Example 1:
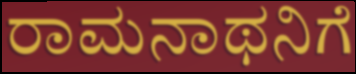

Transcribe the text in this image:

ರಾಮನಾಥನಿಗೆ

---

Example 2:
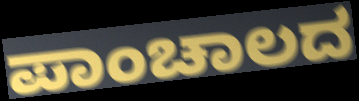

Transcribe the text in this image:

ಪಾಂಚಾಲದ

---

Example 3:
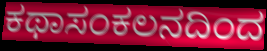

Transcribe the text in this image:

ಕಥಾಸಂಕಲನದಿಂದ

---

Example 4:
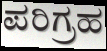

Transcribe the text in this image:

ಪರಿಗ್ರಹ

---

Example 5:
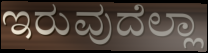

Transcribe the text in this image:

ಇರುವುದೆಲ್ಲಾ